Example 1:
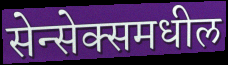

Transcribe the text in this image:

सेन्सेक्समधील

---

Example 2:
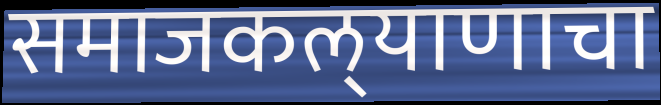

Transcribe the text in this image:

समाजकल्याणाचा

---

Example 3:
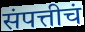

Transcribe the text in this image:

संपत्तीचं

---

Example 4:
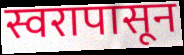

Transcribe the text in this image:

स्वरापासून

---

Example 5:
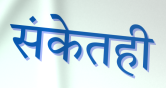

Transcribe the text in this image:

संकेतही